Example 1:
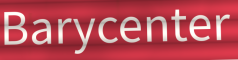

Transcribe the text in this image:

Barycenter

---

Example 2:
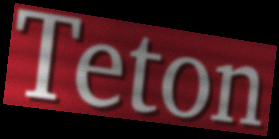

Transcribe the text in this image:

Teton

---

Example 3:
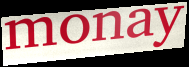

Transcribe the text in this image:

monay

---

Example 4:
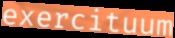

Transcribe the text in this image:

exercituum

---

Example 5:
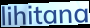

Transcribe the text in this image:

lihitana